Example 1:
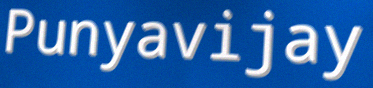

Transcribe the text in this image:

Punyavijay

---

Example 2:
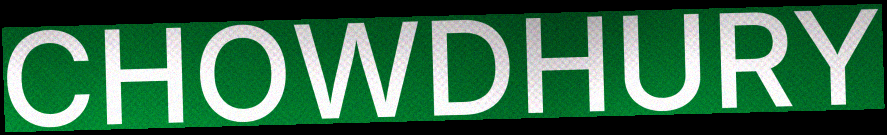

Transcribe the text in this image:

CHOWDHURY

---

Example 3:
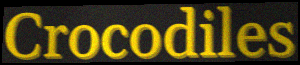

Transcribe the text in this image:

Crocodiles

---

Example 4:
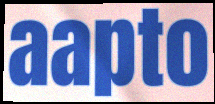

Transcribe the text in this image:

aapto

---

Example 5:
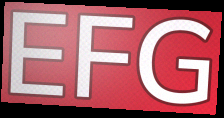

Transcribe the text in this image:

EFG